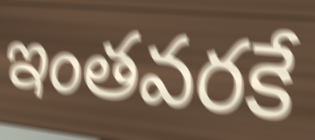
ఇంతవరకే